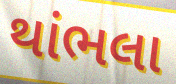
થાંભલા